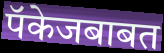
पॅकेजबाबत